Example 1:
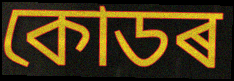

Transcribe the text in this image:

কোডৰ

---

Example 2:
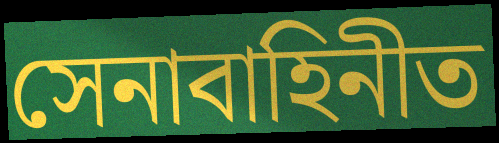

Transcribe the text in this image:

সেনাবাহিনীত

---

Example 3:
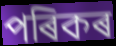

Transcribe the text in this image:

পৰিকৰ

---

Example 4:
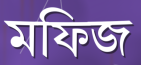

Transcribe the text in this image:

মফিজ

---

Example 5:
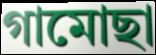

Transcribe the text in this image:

গামোছা